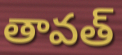
తావత్